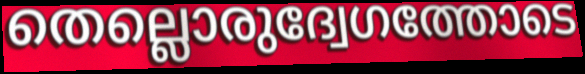
തെല്ലൊരുദ്വേഗത്തോടെ